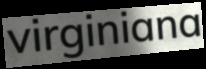
virginiana